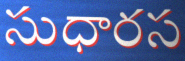
సుధారస